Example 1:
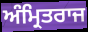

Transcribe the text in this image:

ਅੰਮ੍ਰਿਤਰਾਜ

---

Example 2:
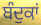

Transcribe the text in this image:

ਬੰਦੁਕਾਂ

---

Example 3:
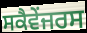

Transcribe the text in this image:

ਸਕੈਵੇਂਜਰਸ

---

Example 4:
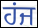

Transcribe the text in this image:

ਹਂਜ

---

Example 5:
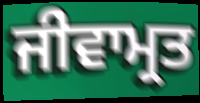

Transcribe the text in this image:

ਜੀਵਾਮ੍ਰਤ